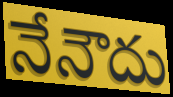
నేనౌదు